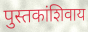
पुस्तकांशिवाय